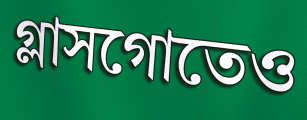
গ্লাসগোতেও